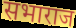
सभाराज